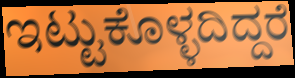
ಇಟ್ಟುಕೊಳ್ಳದಿದ್ದರೆ